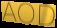
AOD